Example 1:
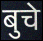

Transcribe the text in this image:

बुचे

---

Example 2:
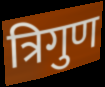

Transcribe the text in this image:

त्रिगुण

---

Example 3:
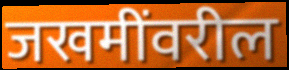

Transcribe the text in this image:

जखमींवरील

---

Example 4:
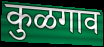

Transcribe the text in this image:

कुळगाव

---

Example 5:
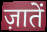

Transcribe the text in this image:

ज़ातें